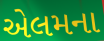
એલમના